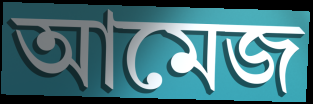
আমেজ